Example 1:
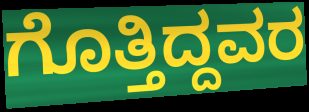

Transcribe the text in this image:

ಗೊತ್ತಿದ್ದವರ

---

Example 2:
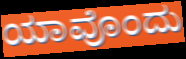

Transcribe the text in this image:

ಯಾವೊಂದು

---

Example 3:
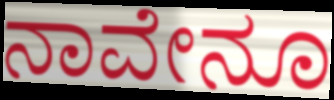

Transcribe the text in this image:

ನಾವೇನೂ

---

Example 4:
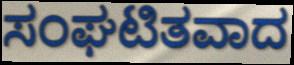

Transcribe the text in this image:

ಸಂಘಟಿತವಾದ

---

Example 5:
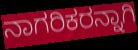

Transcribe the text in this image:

ನಾಗರಿಕರನ್ನಾಗಿ